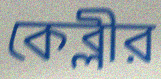
কেব্লীর